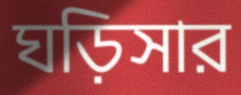
ঘড়িসার